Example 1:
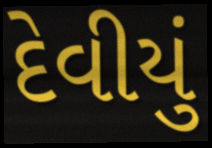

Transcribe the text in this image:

દેવીયું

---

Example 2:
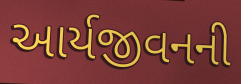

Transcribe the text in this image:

આર્યજીવનની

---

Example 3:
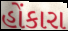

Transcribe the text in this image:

હોંકારા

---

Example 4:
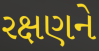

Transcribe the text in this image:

રક્ષણને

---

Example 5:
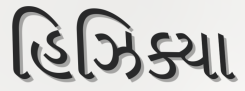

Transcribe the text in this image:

હિઝિક્યા